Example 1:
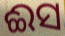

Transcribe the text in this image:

ଈସ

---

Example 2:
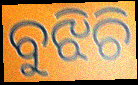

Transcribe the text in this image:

ବୁଝିଚି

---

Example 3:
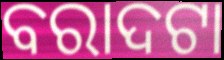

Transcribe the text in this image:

ବରାଦଟା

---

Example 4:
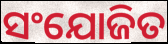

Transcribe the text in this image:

ସଂଯୋଜିତ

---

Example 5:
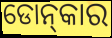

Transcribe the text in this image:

ଡୋନ୍‍କାର